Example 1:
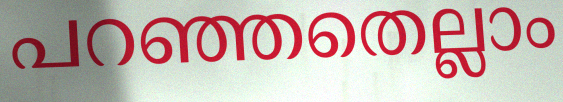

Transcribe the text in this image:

പറഞ്ഞതെല്ലാം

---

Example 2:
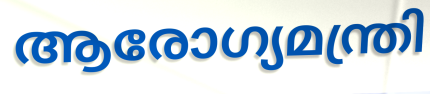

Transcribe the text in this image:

ആരോഗ്യമന്ത്രി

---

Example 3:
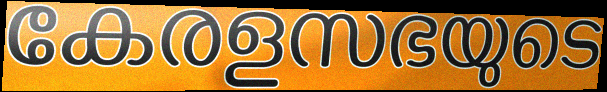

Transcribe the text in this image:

കേരളസഭയുടെ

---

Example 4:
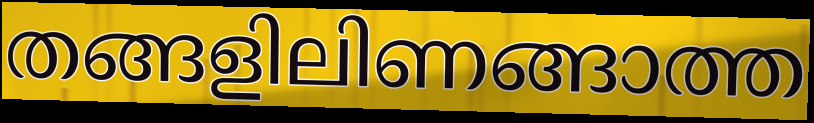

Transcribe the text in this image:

തങ്ങളിലിണങ്ങാത്ത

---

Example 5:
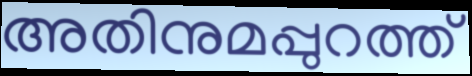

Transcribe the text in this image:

അതിനുമപ്പുറത്ത്